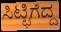
ಸಿಟ್ಟಿಗೆದ್ದ